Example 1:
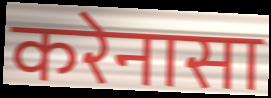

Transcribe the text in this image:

करेनासा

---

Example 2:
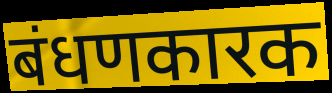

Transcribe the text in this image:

बंधणकारक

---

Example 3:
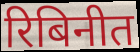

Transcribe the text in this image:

रिबिनीत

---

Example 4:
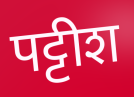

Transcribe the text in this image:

पट्टीश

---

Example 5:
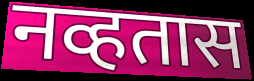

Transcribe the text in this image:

नव्हतास